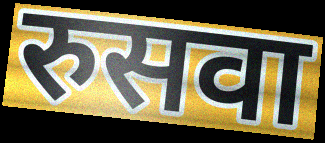
रुसवा